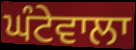
ਘੰਟੇਵਾਲਾ